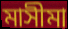
মাসীমা